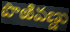
పొఱివణ్డు